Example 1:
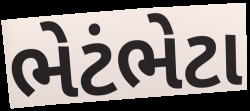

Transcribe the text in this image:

ભેટંભેટા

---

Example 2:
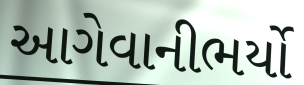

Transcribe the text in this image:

આગેવાનીભર્યો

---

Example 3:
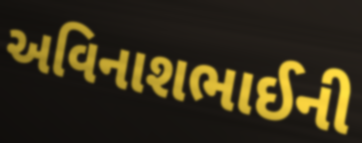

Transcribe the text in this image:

અવિનાશભાઈની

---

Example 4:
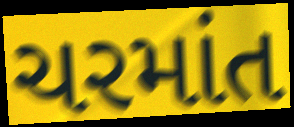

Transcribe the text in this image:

ચરમાંત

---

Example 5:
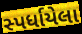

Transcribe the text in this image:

સ્પર્ધાયેલા